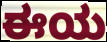
ಈಯ